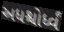
અધશ્ચોર્ધ્વં